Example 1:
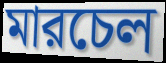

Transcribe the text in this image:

মারচেল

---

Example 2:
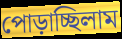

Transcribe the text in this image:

পোড়াচ্ছিলাম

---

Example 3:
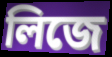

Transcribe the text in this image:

লিজে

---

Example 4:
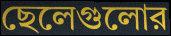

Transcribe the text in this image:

ছেলেগুলোর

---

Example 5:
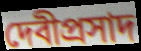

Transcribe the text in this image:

দেবীপ্রসাদ